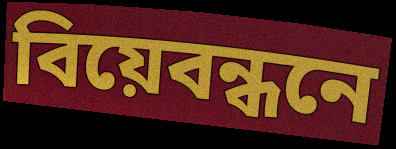
বিয়েবন্ধনে